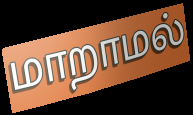
மாறாமல்